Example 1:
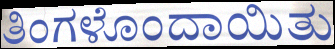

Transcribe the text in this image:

ತಿಂಗಳೊಂದಾಯಿತು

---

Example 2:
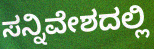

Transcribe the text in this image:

ಸನ್ನಿವೇಶದಲ್ಲಿ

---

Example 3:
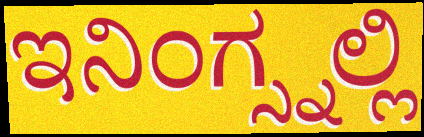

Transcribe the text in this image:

ಇನಿಂಗ್ಸ್ನಲ್ಲಿ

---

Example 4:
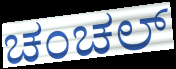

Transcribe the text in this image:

ಚಂಚಲ್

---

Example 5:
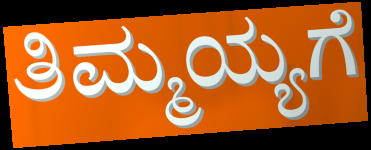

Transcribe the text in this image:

ತಿಮ್ಮಯ್ಯಗೆ